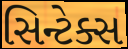
સિન્ટેક્સ